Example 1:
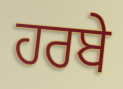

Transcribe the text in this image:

ਹਰਬੇ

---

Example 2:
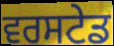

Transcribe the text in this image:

ਵਰਸਟੇਡ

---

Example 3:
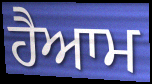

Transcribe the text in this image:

ਹੈਆਮ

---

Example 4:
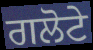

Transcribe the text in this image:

ਗਲੋਟੇ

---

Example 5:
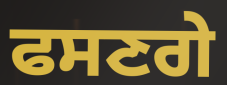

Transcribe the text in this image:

ਫਸਣਗੇ